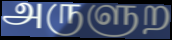
அருளுற